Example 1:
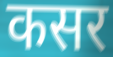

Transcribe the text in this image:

कसर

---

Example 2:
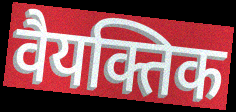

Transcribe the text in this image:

वैयक्तिक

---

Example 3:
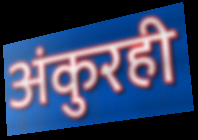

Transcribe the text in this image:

अंकुरही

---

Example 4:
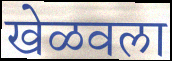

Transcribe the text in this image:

खेळवला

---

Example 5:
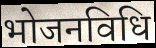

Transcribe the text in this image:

भोजनविधि